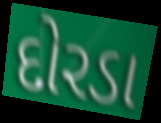
દોરડા